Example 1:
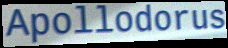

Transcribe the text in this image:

Apollodorus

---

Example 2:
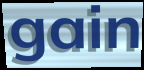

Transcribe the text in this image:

gain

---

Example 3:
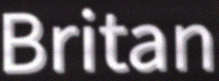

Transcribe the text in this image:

Britan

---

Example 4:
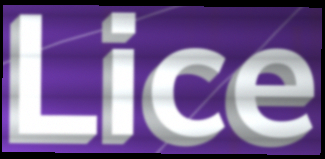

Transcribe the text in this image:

Lice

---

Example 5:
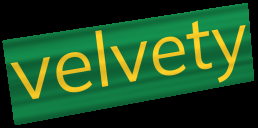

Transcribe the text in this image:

velvety